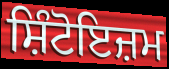
ਸ਼ਿੰਟੋਇਜ਼ਮ